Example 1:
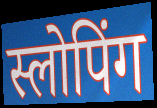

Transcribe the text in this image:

स्लोपिंग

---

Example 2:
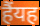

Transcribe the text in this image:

हैंयह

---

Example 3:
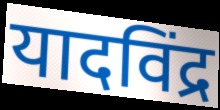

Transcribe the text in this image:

यादविंद्र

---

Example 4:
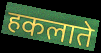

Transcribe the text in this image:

हकलाते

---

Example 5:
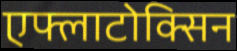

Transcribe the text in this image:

एफ्लाटोक्सिन